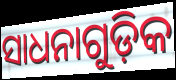
ସାଧନାଗୁଡ଼ିକ